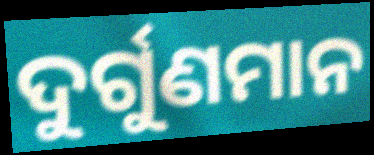
ଦୁର୍ଗୁଣମାନ